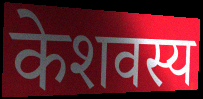
केशवस्य